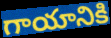
గాయానికి